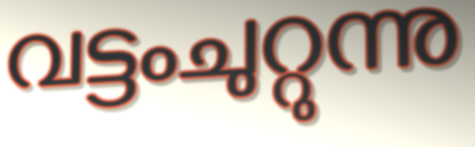
വട്ടംചുറ്റുന്നു